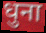
धुना